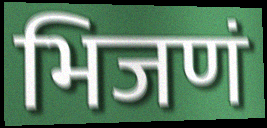
भिजणं